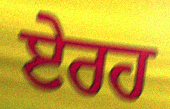
ਏਰਹ